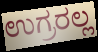
ಉಗ್ರರಲ್ಲ